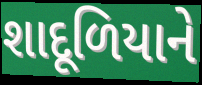
શાદૂળિયાને